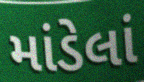
માંડેલાં